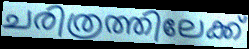
ചരിത്രത്തിലേക്ക്